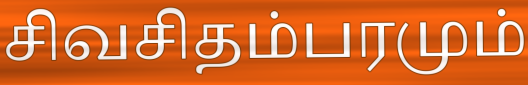
சிவசிதம்பரமும்